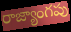
రాజ్యాంగపు